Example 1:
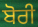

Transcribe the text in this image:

ਬੋਰੀ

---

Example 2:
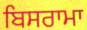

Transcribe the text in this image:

ਬਿਸਰਾਮਾ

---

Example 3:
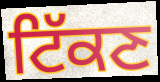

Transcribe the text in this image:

ਟਿੱਕਣ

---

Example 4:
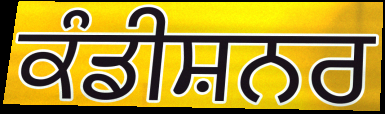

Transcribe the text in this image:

ਕੰਡੀਸ਼ਨਰ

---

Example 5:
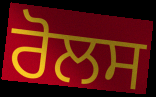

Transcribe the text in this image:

ਰੋਲਸ